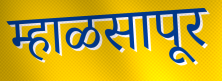
म्हाळसापूर